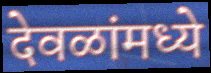
देवळांमध्ये